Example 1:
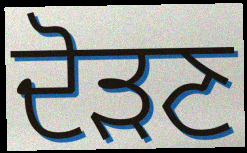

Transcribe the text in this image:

ਦੋੜਣ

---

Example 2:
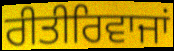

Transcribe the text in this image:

ਰੀਤੀਰਿਵਾਜਾਂ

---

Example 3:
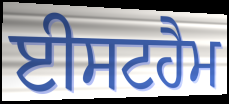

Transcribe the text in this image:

ਈਸਟਹੈਮ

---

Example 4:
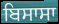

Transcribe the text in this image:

ਬਿਸਾਸਾ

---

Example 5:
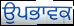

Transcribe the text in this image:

ਉਪਭਾਵਕ